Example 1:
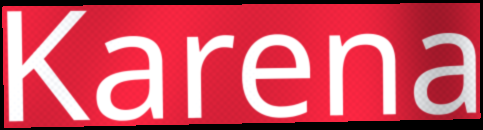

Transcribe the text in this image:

Karena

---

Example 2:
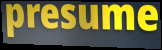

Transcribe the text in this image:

presume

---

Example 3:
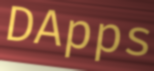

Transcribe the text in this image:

DApps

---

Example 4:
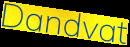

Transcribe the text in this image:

Dandvat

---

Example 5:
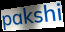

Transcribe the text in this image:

pakshi